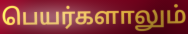
பெயர்களாலும்